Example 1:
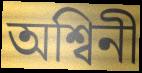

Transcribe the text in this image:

অশ্বিনী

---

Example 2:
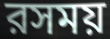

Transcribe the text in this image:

রসময়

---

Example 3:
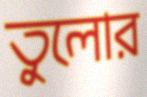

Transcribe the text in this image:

তুলোর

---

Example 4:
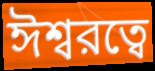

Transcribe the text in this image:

ঈশ্বরত্বে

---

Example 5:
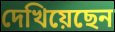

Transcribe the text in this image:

দেখিয়েছেন